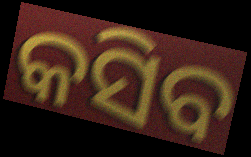
କସିବ